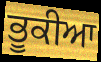
ਭੂਕੀਆ